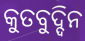
କୁତବୁଦ୍ଦିନ